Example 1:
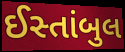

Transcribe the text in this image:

ઈસ્તાંબુલ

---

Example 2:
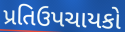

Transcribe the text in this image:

પ્રતિઉપચાયકો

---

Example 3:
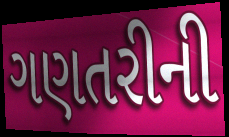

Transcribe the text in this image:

ગણતરીની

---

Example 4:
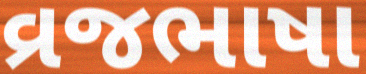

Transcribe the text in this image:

વ્રજભાષા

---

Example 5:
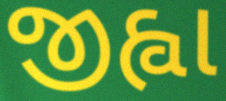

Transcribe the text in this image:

જીહ્વા